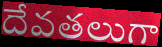
దేవతలుగా